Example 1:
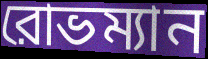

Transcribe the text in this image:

রোভম্যান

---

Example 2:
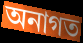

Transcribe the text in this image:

অনাগত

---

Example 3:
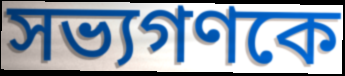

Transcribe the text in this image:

সভ্যগণকে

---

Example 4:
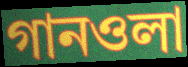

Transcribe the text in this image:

গানওলা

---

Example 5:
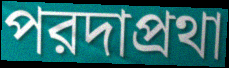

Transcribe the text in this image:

পরদাপ্রথা